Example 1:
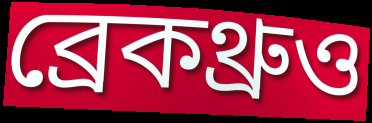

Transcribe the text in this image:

ব্রেকথ্রুও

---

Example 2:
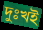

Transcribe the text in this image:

দুঃখই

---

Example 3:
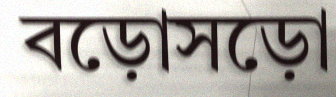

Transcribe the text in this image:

বড়োসড়ো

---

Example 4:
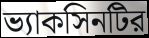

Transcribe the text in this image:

ভ্যাকসিনটির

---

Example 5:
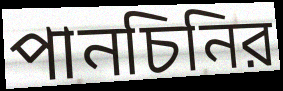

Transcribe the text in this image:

পানচিনির